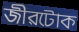
জীৱটোক